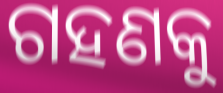
ଗହଣକୁ